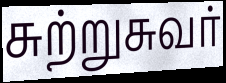
சுற்றுசுவர்